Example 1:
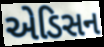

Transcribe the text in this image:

એડિસન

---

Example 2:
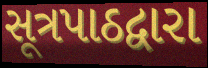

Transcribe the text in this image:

સૂત્રપાઠદ્વારા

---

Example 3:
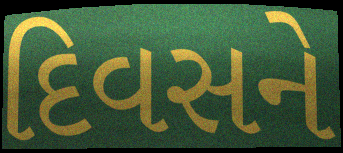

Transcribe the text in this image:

દિવસને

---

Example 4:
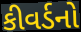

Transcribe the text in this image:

કીવર્ડનો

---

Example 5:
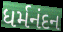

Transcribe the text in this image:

ધર્મનંદન